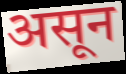
असून